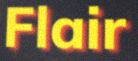
Flair